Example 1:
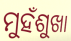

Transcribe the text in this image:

ମୁହଁଶୁଖା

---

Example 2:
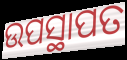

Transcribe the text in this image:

ଉପସ୍ଥାପତ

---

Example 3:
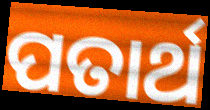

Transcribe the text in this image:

ପତାର୍ଥ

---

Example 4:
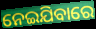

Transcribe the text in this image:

ନେଇଯିବାରେ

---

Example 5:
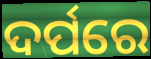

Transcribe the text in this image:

ଦର୍ପରେ